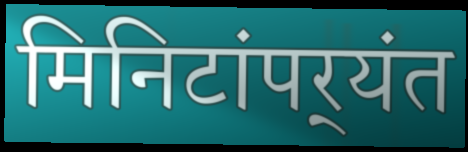
मिनिटांपर्यंत